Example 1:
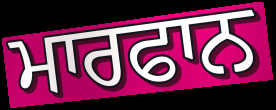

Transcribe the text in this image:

ਮਾਰਫਾਨ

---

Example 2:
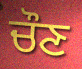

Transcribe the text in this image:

ਚੌਣ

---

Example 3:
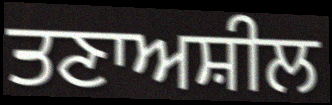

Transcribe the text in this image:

ਤਣਾਅਸ਼ੀਲ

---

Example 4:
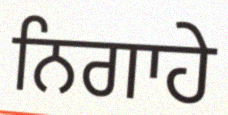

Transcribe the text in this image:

ਨਿਗਾਹੇ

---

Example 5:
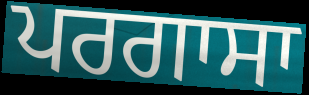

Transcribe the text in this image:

ਪਰਗਾਸਾ